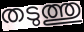
തടുത്തു